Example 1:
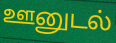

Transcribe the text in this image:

ஊனுடல்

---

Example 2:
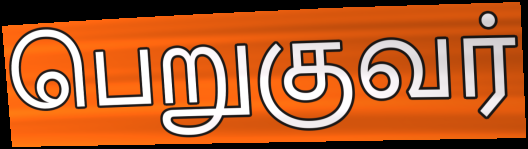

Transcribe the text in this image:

பெறுகுவர்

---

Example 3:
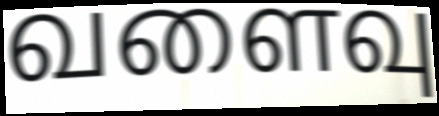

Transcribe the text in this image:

வளைவு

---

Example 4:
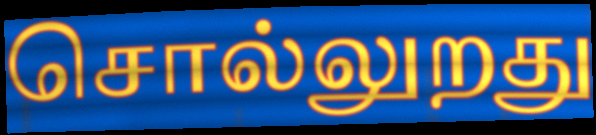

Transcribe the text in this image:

சொல்லுறது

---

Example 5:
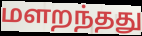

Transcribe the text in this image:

மளறந்தது